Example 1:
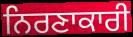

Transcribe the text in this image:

ਨਿਰਣਾਕਾਰੀ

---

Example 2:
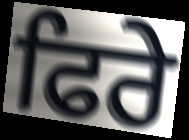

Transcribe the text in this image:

ਫਿਰੇ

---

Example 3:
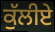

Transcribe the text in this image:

ਕੁੱਲੀਏ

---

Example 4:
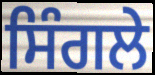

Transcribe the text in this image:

ਸਿੰਗਲੇ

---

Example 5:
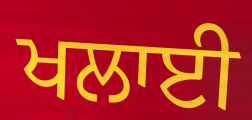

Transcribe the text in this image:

ਖਲਾਈ